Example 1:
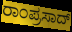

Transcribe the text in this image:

ರಾಂಪ್ರಸಾದ್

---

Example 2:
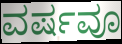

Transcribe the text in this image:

ವರ್ಷವೂ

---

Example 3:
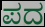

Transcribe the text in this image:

ಪದ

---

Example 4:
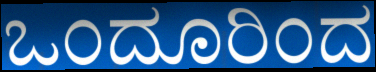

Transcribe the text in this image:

ಒಂದೂರಿಂದ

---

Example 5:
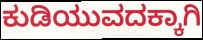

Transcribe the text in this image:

ಕುಡಿಯುವದಕ್ಕಾಗಿ